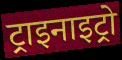
ट्राइनाइट्रो